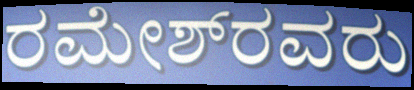
ರಮೇಶ್‌ರವರು